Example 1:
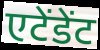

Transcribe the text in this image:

एटेंडेंट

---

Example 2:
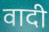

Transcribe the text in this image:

वादी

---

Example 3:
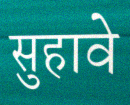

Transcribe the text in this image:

सुहावे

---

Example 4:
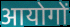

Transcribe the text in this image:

आयोगों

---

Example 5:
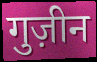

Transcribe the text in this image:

गुज़ीन